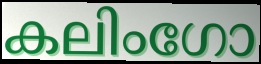
കലിംഗോ